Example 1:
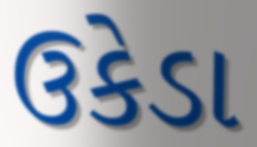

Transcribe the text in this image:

ઉકેડા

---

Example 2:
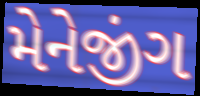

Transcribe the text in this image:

મેનેજીંગ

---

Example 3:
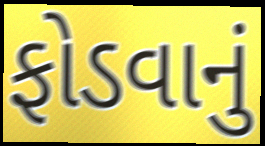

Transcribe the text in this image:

ફોડવાનું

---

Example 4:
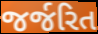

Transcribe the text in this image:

જર્જરિત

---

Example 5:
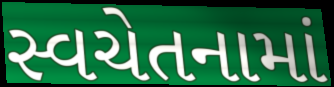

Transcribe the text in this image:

સ્વચેતનામાં